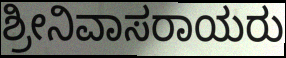
ಶ್ರೀನಿವಾಸರಾಯರು